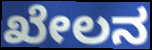
ಖೇಲನ